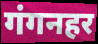
गंगनहर